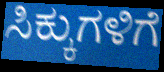
ಸಿಕ್ಕುಗಳಿಗೆ